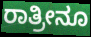
ರಾತ್ರೀನೂ